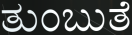
ತುಂಬುತೆ